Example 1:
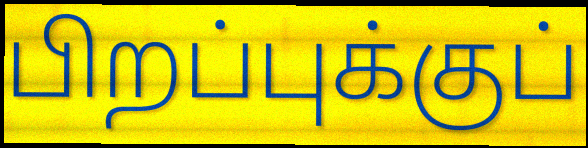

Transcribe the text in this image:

பிறப்புக்குப்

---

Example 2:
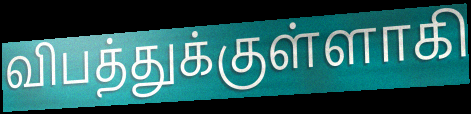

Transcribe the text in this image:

விபத்துக்குள்ளாகி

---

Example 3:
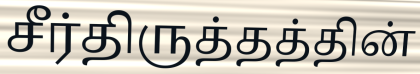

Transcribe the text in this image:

சீர்திருத்தத்தின்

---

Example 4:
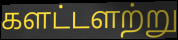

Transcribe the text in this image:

களட்டளற்று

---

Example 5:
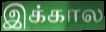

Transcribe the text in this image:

இக்கால